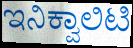
ಇನಿಕ್ವಾಲಿಟಿ